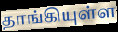
தாங்கியுள்ள